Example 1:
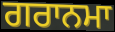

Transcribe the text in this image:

ਗਰਾਨਮਾ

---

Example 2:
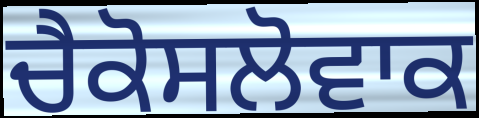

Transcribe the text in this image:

ਚੈਕੋਸਲੋਵਾਕ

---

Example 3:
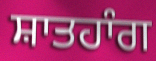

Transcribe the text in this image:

ਸ਼ਾਤਹਾੰਗ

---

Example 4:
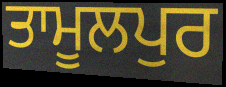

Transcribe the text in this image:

ਤਾਮੂਲਪੁਰ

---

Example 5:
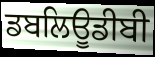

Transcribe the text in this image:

ਡਬਲਿਊਡੀਬੀ